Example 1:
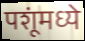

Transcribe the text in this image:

पशूंमध्ये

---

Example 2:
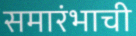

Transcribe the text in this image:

समारंभाची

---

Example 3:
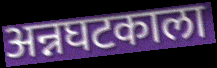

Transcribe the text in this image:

अन्नघटकाला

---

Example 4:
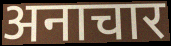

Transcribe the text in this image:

अनाचार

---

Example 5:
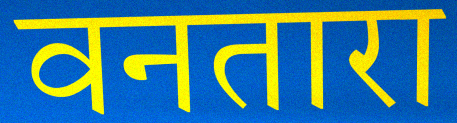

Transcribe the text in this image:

वनतारा